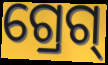
ଗ୍ରେଗ୍